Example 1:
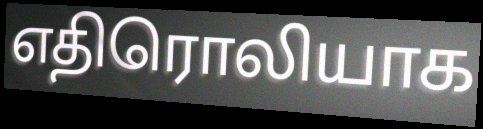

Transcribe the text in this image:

எதிரொலியாக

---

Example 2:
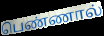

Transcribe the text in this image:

பெண்ணால்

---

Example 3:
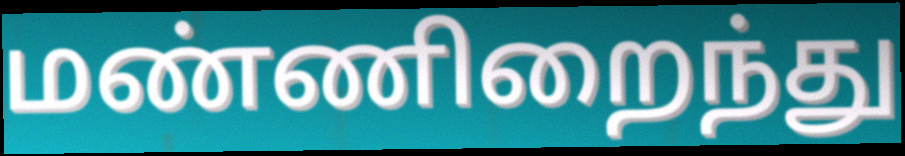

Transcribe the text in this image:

மண்ணிறைந்து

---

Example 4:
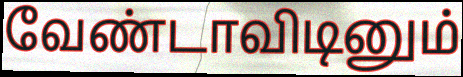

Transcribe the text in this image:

வேண்டாவிடினும்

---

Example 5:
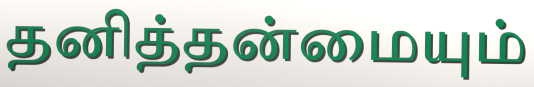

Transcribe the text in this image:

தனித்தன்மையும்